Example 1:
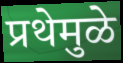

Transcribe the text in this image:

प्रथेमुळे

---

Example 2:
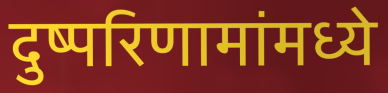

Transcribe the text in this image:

दुष्परिणामांमध्ये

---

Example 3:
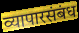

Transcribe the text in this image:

व्यापारसंबंध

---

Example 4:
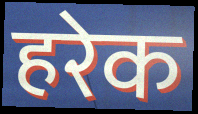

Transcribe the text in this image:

हरेक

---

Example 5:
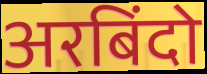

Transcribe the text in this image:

अरबिंदो